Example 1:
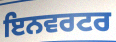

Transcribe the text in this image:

ਇਨਵਰਟਰ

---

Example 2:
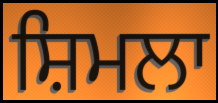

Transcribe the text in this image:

ਸ਼ਿਮਲਾ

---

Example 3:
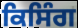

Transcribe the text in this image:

ਕਿਸਿੰਗ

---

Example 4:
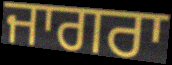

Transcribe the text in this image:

ਜਾਗਰਾ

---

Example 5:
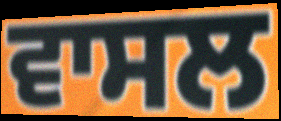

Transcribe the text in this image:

ਵਾਸਲ